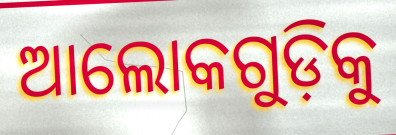
ଆଲୋକଗୁଡ଼ିକୁ